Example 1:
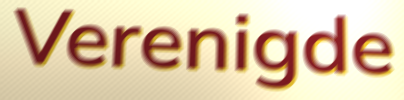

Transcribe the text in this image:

Verenigde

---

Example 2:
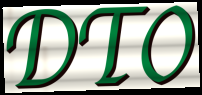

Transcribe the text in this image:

DTO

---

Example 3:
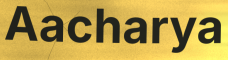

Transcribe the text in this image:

Aacharya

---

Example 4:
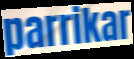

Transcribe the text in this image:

parrikar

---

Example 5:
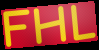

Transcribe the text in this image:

FHL